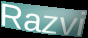
Razvi